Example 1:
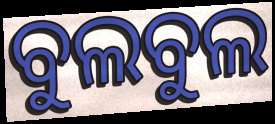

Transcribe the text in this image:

ବୁଲବୁଲ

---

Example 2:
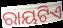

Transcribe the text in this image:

ରାୟଟିଏ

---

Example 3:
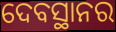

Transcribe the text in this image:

ଦେବସ୍ଥାନର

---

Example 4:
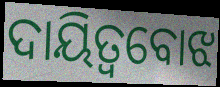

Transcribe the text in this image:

ଦାୟିତ୍ୱବୋଝ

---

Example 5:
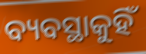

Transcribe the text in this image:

ବ୍ୟବସ୍ଥାକୁହିଁ